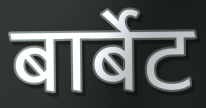
बार्बेट